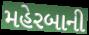
મહેરબાની